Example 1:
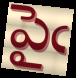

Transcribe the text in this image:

పైఁ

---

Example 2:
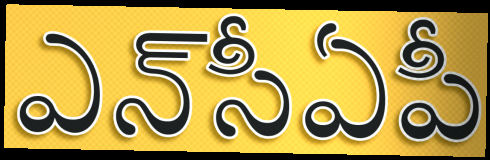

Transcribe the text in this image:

ఎన్‌సీఏపీ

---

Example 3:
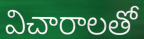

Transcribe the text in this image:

విచారాలతో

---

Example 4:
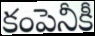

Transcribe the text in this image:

కంపెనీకీ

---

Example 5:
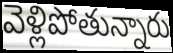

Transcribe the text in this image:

వెళ్లిపోతున్నారు